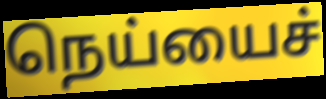
நெய்யைச்